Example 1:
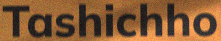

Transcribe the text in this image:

Tashichho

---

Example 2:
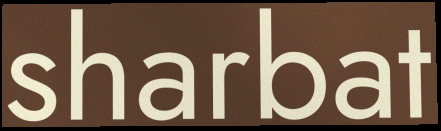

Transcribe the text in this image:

sharbat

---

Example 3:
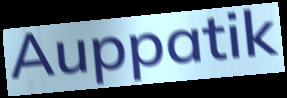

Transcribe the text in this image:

Auppatik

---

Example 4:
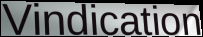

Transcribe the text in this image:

Vindication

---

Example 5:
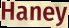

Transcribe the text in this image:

Haney